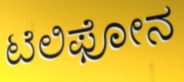
ಟೆಲಿಫೋನ